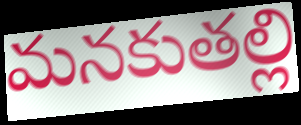
మనకుతల్లి